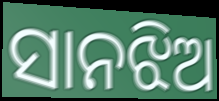
ସାନଝିଅ